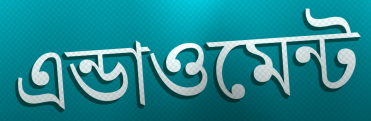
এন্ডাওমেন্ট